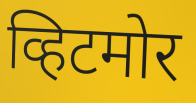
व्हिटमोर